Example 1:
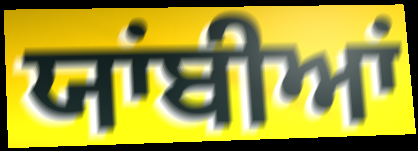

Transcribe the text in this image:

ਯਾਂਬੀਆਂ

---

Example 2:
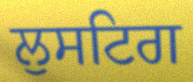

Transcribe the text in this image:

ਲੁਸਟਿਗ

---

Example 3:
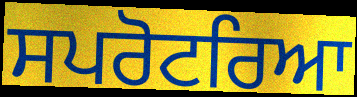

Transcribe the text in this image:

ਸਪਰੋਟਰਿਆ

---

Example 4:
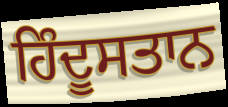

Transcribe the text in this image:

ਹਿੰਦੂਸਤਾਨ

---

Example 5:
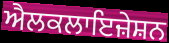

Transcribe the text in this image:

ਐਲਕਲਾਇਜ਼ੇਸ਼ਨ